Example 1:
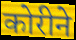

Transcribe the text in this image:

कोरीने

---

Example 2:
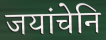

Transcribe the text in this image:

जयांचेनि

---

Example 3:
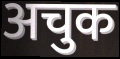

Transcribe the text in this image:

अचुक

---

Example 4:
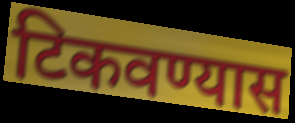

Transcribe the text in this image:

टिकवण्यास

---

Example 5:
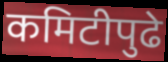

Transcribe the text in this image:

कमिटीपुढे